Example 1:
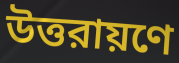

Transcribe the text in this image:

উত্তরায়ণে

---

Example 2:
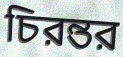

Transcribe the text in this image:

চিরন্তর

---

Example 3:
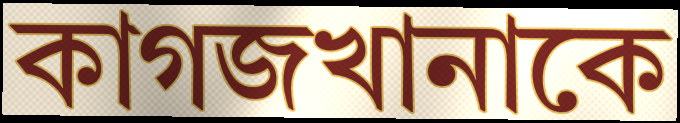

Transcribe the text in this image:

কাগজখানাকে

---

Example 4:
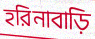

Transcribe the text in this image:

হরিনাবাড়ি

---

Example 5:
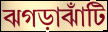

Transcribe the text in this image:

ঝগড়াঝাঁটি